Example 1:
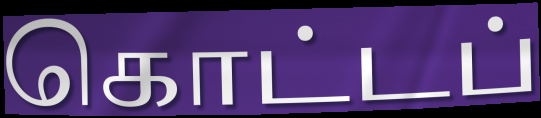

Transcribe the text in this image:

கொட்டப்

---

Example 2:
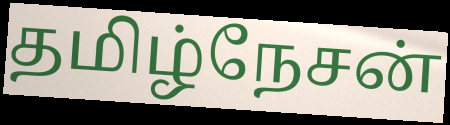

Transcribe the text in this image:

தமிழ்நேசன்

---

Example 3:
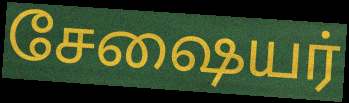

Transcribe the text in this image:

சேஷையர்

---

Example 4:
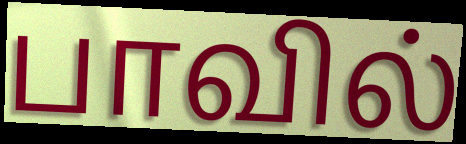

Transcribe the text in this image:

பாவில்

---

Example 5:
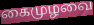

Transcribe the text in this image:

கைமுழவை